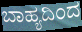
ಬಾಹ್ಯದಿಂದ